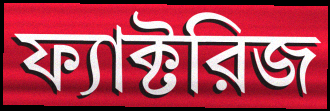
ফ্যাক্টরিজ